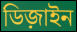
ডিজ়াইন